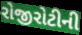
રોજીરોટીની